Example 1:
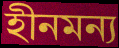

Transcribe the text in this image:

হীনমন্য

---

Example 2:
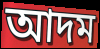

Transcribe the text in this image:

আদম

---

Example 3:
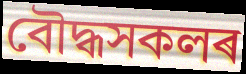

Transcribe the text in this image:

বৌদ্ধসকলৰ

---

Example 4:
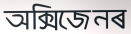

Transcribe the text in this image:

অক্সিজেনৰ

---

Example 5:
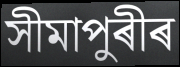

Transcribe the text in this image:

সীমাপুৰীৰ